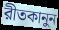
রীতকানুন